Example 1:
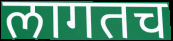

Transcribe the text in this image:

लागतच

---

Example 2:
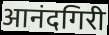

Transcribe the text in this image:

आनंदगिरी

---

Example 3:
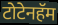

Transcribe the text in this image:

टोटेनहॅम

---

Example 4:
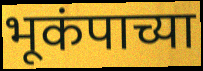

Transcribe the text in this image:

भूकंपाच्या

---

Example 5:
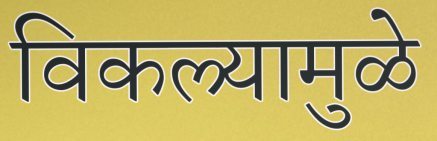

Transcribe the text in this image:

विकल्यामुळे